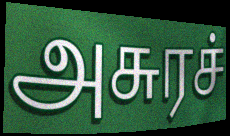
அசுரச்